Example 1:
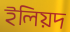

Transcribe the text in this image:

ইলিয়দ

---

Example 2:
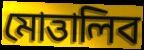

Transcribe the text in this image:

মোত্তালিব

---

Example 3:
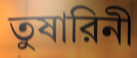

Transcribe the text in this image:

তুষারিনী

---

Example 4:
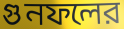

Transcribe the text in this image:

গুনফলের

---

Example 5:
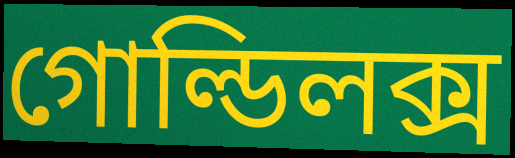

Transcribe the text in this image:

গোল্ডিলক্স